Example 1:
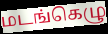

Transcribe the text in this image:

மடங்கெழு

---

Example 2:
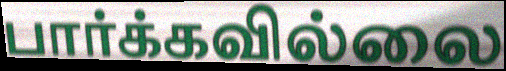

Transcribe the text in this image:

பார்க்கவில்லை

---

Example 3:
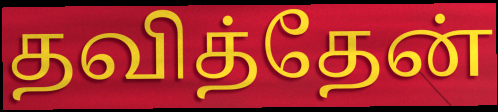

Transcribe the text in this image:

தவித்தேன்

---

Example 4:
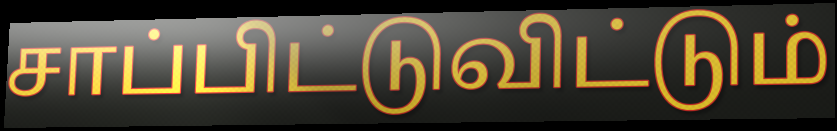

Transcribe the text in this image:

சாப்பிட்டுவிட்டும்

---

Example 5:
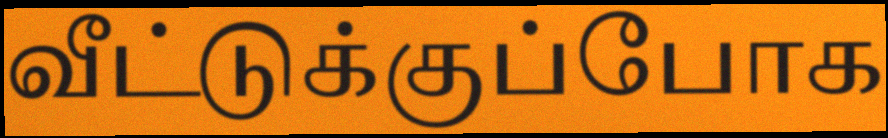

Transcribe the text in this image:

வீட்டுக்குப்போக